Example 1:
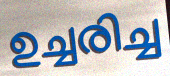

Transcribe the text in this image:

ഉച്ചരിച്ച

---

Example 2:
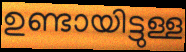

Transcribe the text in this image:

ഉണ്ടായിട്ടുള്ള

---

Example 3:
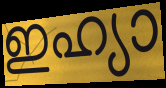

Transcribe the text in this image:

ഇഹ്യാ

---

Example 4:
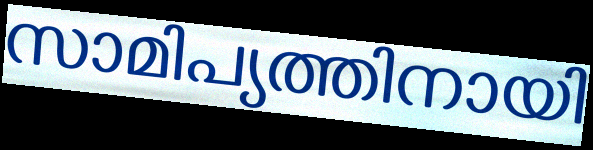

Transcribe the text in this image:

സാമിപ്യത്തിനായി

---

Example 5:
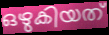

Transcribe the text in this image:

ഒഴുകിയത്